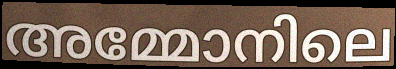
അമ്മോനിലെ